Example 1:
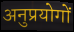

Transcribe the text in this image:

अनुप्रयोगों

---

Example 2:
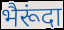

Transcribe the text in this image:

भैरूंदा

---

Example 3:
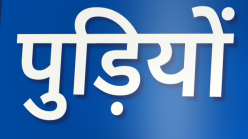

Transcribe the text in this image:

पुड़ियों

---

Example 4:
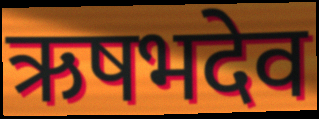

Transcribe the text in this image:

ऋषभदेव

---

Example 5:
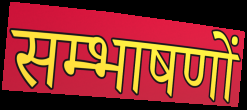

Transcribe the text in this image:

सम्भाषणों